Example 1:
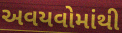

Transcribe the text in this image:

અવયવોમાંથી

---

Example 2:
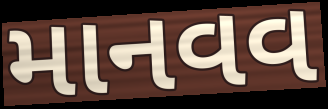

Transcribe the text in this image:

માનવવ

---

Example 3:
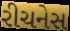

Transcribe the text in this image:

રીચનેસ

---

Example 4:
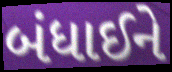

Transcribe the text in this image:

બંધાઈને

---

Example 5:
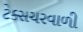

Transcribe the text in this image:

ટેક્સચરવાળી